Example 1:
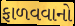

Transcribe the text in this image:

ફાળવવાનો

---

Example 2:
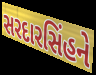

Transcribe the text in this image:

સરદારસિંહને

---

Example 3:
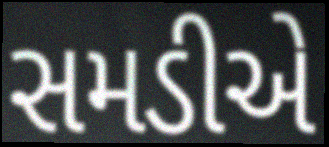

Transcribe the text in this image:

સમડીએ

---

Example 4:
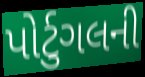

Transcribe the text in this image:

પોર્ટુગલની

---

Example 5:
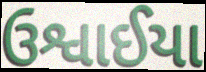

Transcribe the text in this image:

ઉશ્વાઈયા